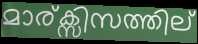
മാര്ക്സിസത്തില്